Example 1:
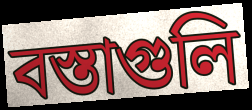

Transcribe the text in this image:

বস্তাগুলি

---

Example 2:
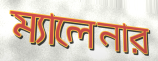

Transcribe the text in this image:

ম্যালেনার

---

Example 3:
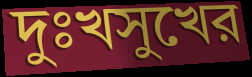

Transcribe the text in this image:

দুঃখসুখের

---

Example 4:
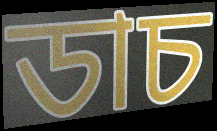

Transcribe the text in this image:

ডাচ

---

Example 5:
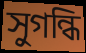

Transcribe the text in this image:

সুগন্ধি